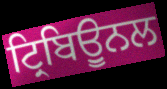
ਟ੍ਰਿਬਿਊੁਨਲ